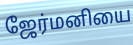
ஜேர்மனியை